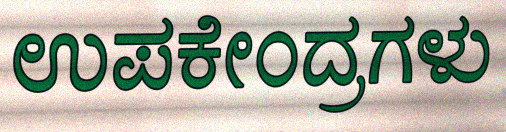
ಉಪಕೇಂದ್ರಗಳು